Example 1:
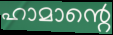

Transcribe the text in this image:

ഹാമാന്റെ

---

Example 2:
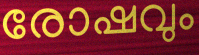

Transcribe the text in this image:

രോഷവും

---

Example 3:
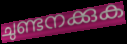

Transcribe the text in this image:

ചുണ്ടനക്കുക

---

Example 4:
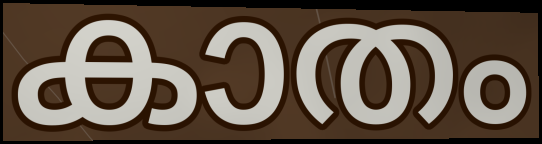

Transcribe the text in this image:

കാതം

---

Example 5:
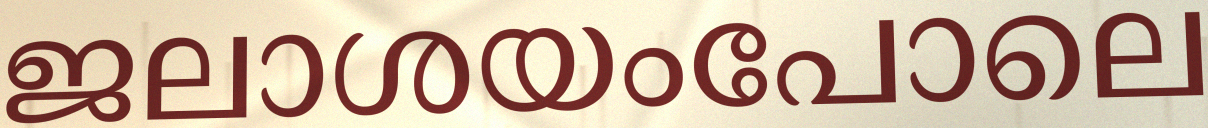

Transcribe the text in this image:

ജലാശയംപോലെ